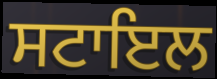
ਸਟਾਇਲ